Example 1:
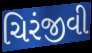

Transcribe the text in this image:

ચિરંજીવી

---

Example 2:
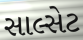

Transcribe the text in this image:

સાલ્સેટ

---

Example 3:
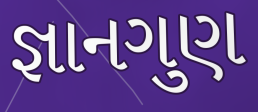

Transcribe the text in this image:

જ્ઞાનગુણ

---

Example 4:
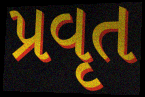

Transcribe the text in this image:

પ્રવૃત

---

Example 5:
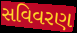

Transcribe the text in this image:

સવિવરણ